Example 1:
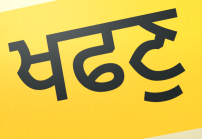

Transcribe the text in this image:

ਖਫਣੁ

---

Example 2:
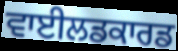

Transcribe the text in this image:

ਵਾਈਲਡਕਾਰਡ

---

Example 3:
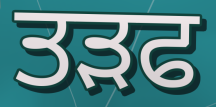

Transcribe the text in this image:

ਤੜਫ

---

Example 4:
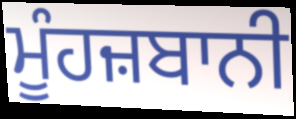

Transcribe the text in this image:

ਮੂੰਹਜ਼ਬਾਨੀ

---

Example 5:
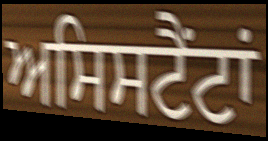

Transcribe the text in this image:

ਅਸਿਸਟੈਂਟਾਂ